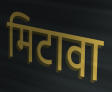
मिटावा